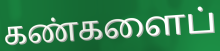
கண்களைப்